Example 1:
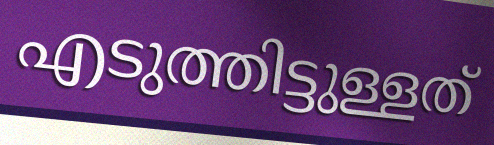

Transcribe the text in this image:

എടുത്തിട്ടുള്ളത്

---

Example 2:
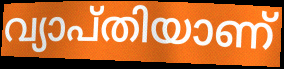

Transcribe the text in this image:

വ്യാപ്തിയാണ്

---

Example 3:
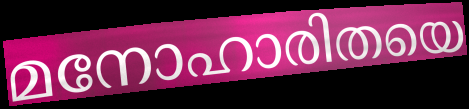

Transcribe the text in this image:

മനോഹാരിതയെ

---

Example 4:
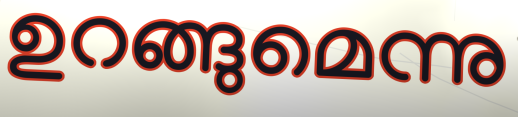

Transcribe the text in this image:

ഉറങ്ങുമെന്നു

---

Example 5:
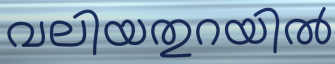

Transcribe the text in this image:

വലിയതുറയിൽ